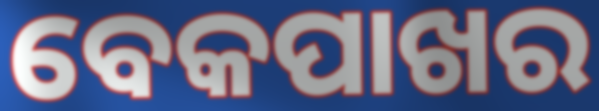
ବେକପାଖର